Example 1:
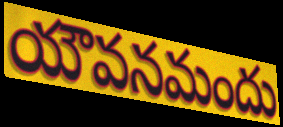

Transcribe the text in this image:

యౌవనమందు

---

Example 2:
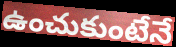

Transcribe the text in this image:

ఉంచుకుంటేనే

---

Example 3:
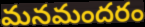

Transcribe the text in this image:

మనమందరం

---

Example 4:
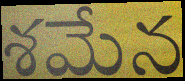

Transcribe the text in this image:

శమేన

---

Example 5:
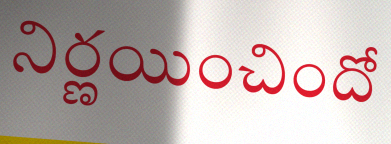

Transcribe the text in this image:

నిర్ణయించిందో